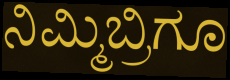
ನಿಮ್ಮಿಬ್ರಿಗೂ